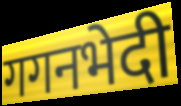
गगनभेदी